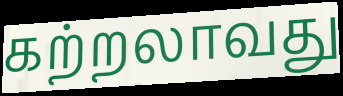
கற்றலாவது